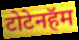
टोटेनहॅम